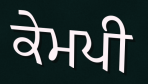
ਕੇਮਪੀ